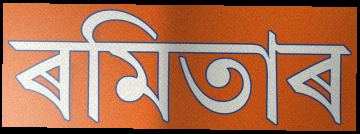
ৰমিতাৰ